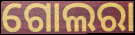
ଗୋଲରା